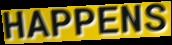
HAPPENS